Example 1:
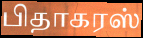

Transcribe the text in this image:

பிதாகரஸ்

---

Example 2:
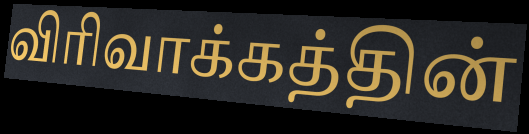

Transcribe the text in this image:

விரிவாக்கத்தின்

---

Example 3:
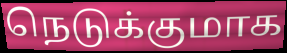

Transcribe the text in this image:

நெடுக்குமாக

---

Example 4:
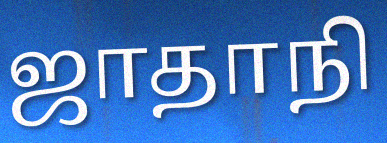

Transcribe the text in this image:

ஜாதாநி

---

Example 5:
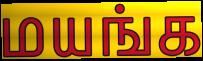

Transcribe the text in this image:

மயங்க